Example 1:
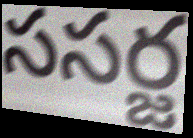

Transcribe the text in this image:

ససర్జ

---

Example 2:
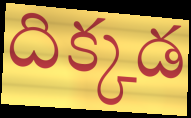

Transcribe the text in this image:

దిక్కడ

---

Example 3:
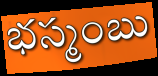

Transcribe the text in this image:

భస్మంబు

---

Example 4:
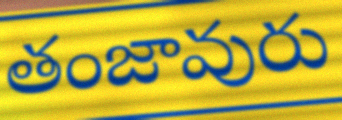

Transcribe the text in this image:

తంజావురు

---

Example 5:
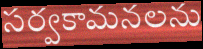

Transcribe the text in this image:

సర్వకామనలను